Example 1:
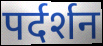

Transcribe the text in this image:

पर्दर्शन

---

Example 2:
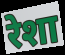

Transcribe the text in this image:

रेशा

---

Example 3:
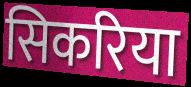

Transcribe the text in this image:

सिकरिया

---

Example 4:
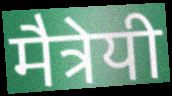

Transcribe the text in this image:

मैत्रेयी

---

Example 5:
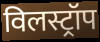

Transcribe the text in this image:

विलस्ट्रॉप